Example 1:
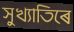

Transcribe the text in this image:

সুখ্যাতিৰে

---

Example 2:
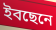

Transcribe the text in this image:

ইবছেনে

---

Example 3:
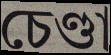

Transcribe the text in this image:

চেণ্ডা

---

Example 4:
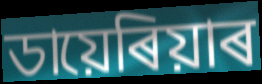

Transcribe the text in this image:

ডায়েৰিয়াৰ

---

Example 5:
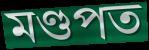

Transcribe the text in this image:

মণ্ডপত